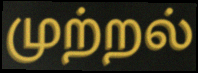
முற்றல்